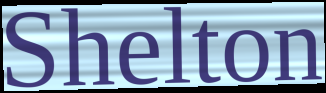
Shelton